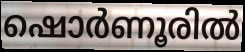
ഷൊർണൂരിൽ